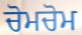
ਚੋਮਚੋਮ